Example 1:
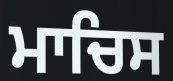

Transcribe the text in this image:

ਮਾਚਿਸ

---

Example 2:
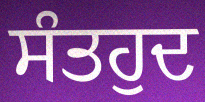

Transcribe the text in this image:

ਸੰਤਹੁਦ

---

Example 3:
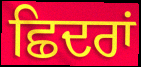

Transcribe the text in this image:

ਛਿਦਰਾਂ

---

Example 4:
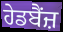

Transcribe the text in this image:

ਹੇਡਬੈਂਜ਼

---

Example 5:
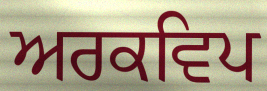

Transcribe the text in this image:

ਅਰਕਵਿਪ